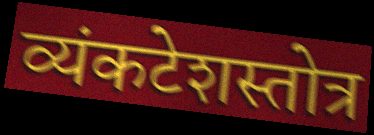
व्यंकटेशस्तोत्र